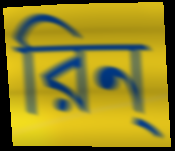
রিন্